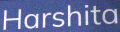
Harshita